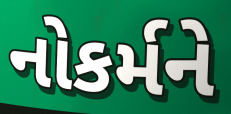
નોકર્મને